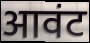
आवंट